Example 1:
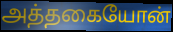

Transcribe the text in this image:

அத்தகையோன்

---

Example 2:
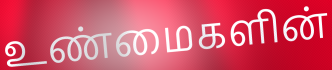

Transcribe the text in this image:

உண்மைகளின்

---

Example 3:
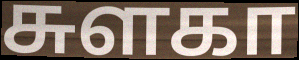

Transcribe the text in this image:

சுளகா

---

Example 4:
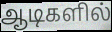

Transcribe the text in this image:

ஆடிகளில்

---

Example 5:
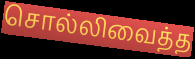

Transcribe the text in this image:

சொல்லிவைத்த